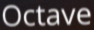
Octave